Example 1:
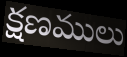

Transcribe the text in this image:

క్షణములు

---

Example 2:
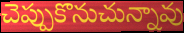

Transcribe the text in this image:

చెప్పుకొనుచున్నావు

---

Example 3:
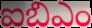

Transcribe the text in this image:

ఐబిఎం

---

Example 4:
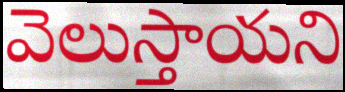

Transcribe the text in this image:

వెలుస్తాయని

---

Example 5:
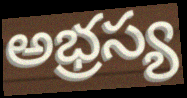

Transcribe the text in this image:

అభ్రస్య